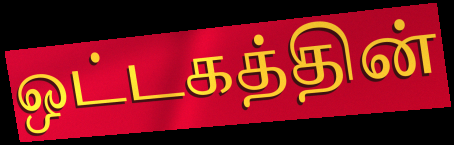
ஒட்டகத்தின்